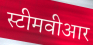
स्टीमवीआर